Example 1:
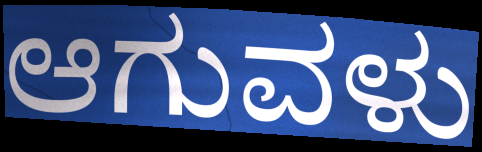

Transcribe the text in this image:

ಆಗುವಳು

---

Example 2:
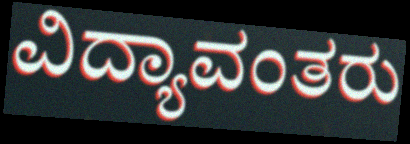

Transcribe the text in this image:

ವಿದ್ಯಾವಂತರು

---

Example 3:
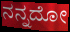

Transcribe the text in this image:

ನನ್ನದೋ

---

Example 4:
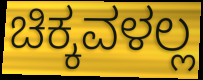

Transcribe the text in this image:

ಚಿಕ್ಕವಳಲ್ಲ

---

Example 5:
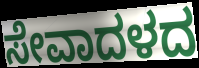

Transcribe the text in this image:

ಸೇವಾದಳದ